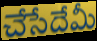
చేసేదేమీ